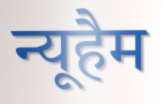
न्यूहैम